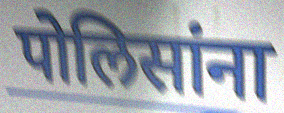
पोलिसांना